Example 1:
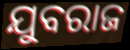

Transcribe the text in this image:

ଯୁବରାଜ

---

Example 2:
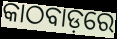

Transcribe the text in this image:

କାଠବାଡ଼ରେ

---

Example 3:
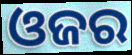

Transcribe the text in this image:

ଓଜର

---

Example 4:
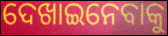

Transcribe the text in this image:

ଦେଖାଇନେବାକୁ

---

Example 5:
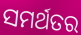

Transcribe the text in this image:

ସମର୍ଥତର